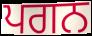
ਪਗਨ